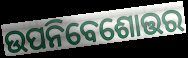
ଉପନିବେଶୋତ୍ତର